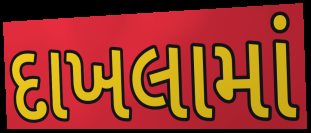
દાખલામાં